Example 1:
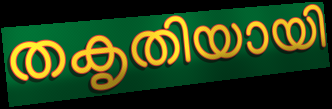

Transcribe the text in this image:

തകൃതിയായി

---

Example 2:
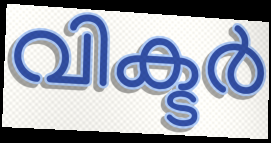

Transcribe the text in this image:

വിക്ടർ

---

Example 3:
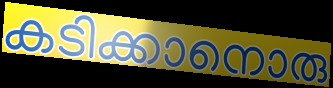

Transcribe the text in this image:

കടിക്കാനൊരു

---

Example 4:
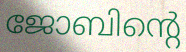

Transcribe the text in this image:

ജോബിന്റെ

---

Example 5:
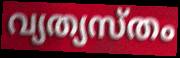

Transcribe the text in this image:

വ്യത്യസ്തം